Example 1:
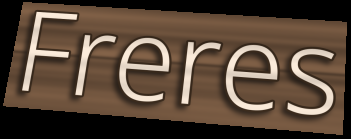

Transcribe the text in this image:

Freres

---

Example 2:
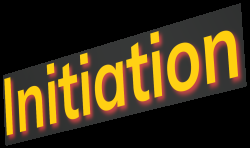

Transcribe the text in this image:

Initiation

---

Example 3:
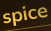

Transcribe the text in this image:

spice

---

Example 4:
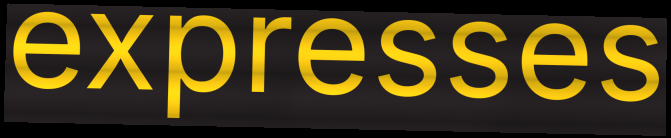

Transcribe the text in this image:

expresses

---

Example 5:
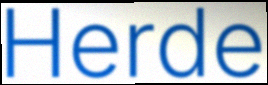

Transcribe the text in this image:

Herde